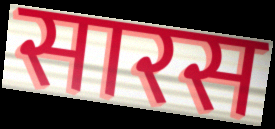
सारस